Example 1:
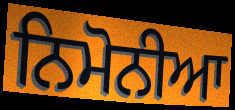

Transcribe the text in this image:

ਨਿਮੋਨੀਆ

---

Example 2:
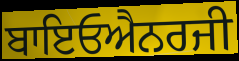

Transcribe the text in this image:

ਬਾਇਓਐਨਰਜੀ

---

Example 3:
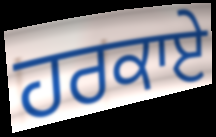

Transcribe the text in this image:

ਹਰਕਾਏ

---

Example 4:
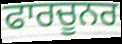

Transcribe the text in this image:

ਫਾਰਚੂਨਰ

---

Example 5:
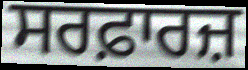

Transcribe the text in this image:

ਸਰਫ਼ਾਰਜ਼